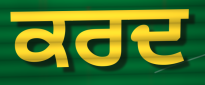
ਕਰਦ